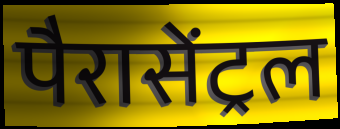
पैरासेंट्रल